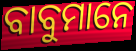
ବାବୁମାନେ